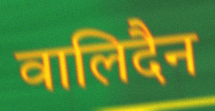
वालिदैन